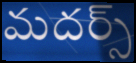
మదర్స్